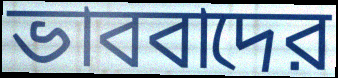
ভাববাদের